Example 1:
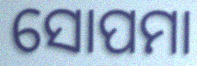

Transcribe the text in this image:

ସୋପମା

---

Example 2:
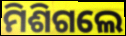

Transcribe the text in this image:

ମିଶିଗଲେ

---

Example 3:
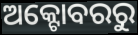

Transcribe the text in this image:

ଅକ୍ଟୋବରରୁ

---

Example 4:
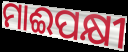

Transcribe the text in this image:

ମାଈପକ୍ଷୀ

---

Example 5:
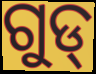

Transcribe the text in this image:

ଗୁଡ୍